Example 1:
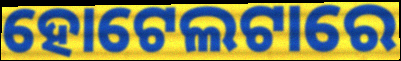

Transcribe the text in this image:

ହୋଟେଲଟାରେ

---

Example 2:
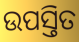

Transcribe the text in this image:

ଉପସ୍ତିତ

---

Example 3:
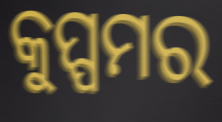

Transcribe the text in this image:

କୁପ୍ପମର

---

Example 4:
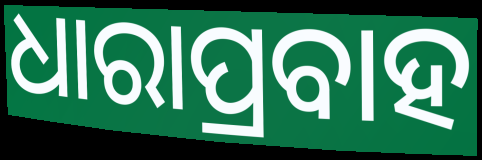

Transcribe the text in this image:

ଧାରାପ୍ରବାହ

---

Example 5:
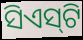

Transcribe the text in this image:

ସିଏସ୍‌ଟି